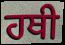
ਹਥੀ